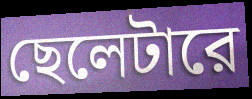
ছেলেটারে